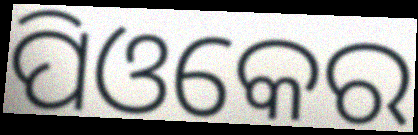
ପିଓକେର